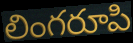
లింగరూపి